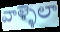
వాళ్ళెలా